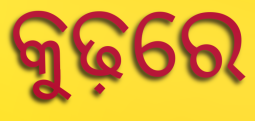
କୁଢ଼ରେ